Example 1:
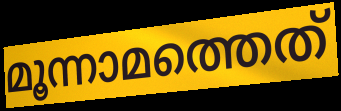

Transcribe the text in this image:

മൂന്നാമത്തെത്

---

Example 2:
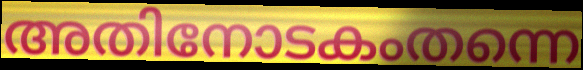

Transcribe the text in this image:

അതിനോടകംതന്നെ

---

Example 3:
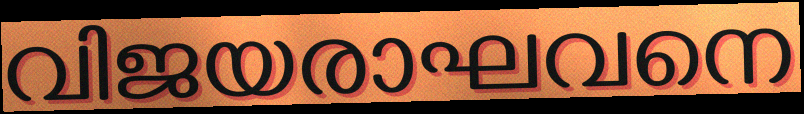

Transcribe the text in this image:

വിജയരാഘവനെ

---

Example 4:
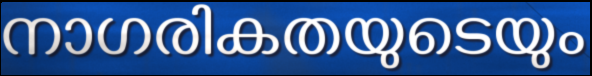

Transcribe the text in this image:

നാഗരികതയുടെയും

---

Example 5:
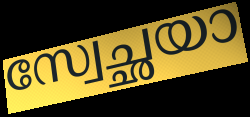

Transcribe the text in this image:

സ്വേച്ഛയാ